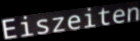
Eiszeiten